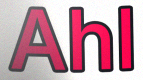
Ahl